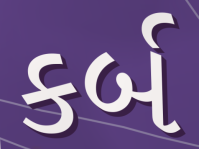
કર્બ